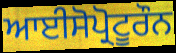
ਆਈਸੋਪ੍ਰੋਟੂਰੌਨ